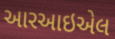
આરઆઇએલ